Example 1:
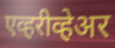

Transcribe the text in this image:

एव्हरीव्हेअर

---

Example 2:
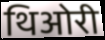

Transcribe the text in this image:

थिओरी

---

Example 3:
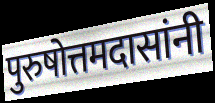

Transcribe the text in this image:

पुरुषोत्तमदासांनी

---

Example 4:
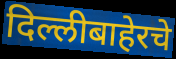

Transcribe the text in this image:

दिल्लीबाहेरचे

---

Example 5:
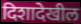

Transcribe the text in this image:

दिशादेखील